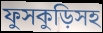
ফুসকুড়িসহ